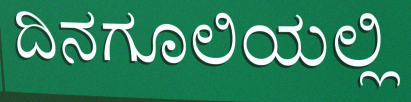
ದಿನಗೂಲಿಯಲ್ಲಿ